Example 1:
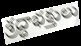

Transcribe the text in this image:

శ్రద్ధాభక్తులు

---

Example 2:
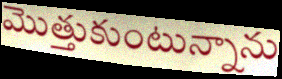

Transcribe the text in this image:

మొత్తుకుంటున్నాను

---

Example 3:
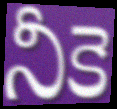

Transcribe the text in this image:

నీకె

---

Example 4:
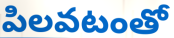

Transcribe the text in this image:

పిలవటంతో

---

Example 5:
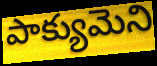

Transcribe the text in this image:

పాక్యుమెని